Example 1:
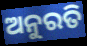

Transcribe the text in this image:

ଅନୁରତି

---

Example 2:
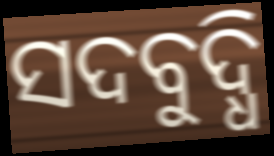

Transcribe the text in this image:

ସଦବୁଦ୍ଧି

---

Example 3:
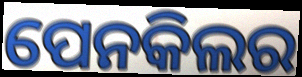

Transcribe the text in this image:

ପେନକିଲର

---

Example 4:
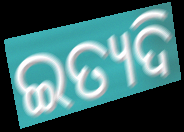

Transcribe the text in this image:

ଇତ୍ୟଦି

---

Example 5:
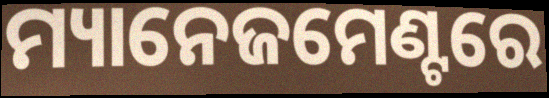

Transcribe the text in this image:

ମ୍ୟାନେଜମେଣ୍ଟରେ